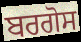
ਬਰਗੋਸ